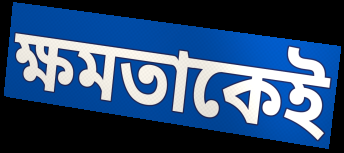
ক্ষমতাকেই